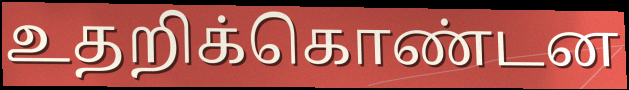
உதறிக்கொண்டன